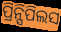
ପ୍ରିନ୍ସିପିଲସ